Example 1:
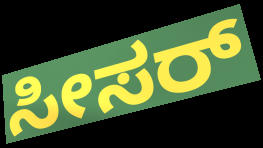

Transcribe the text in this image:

ಸೀಸರ್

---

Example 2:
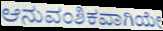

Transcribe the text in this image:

ಆನುವಂಶಿಕವಾಗಿಯೇ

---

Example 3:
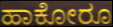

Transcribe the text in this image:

ಹಾಕೋರೂ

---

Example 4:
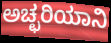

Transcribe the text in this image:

ಅಚ್ಛರಿಯಾನಿ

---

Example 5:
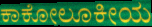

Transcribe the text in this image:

ಕಾಕೋಲೂಕೀಯ